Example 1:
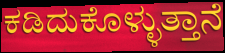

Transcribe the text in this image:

ಕಡಿದುಕೊಳ್ಳುತ್ತಾನೆ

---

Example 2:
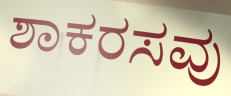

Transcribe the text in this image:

ಶಾಕರಸವು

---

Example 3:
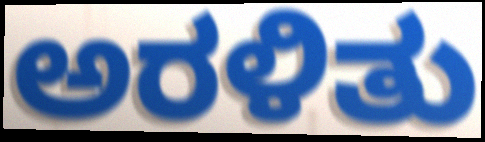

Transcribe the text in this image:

ಅರಳಿತು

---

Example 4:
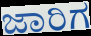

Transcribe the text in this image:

ಜಾರಿಗ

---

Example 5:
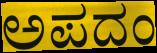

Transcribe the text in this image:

ಅಪದಂ